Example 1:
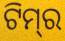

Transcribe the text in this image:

ଟିମ୍‌ର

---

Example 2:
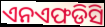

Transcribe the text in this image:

ଏନଏଫଡିସି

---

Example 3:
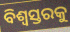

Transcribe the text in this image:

ବିଶ୍ୱସ୍ତରକୁ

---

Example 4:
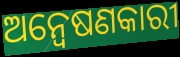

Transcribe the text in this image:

ଅନ୍ୱେଷଣକାରୀ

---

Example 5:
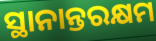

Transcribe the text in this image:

ସ୍ଥାନାନ୍ତରକ୍ଷମ